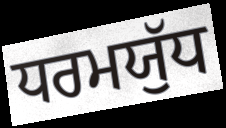
ਧਰਮਯੁੱਧ